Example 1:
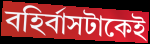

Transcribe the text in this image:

বহির্বাসটাকেই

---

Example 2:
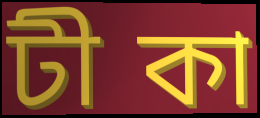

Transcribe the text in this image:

টীকা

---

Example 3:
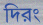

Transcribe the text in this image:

দিরং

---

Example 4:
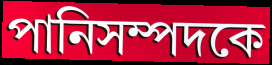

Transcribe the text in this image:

পানিসম্পদকে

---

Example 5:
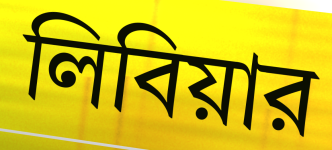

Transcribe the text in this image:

লিবিয়ার